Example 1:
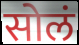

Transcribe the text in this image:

सोलं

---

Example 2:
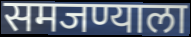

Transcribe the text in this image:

समजण्याला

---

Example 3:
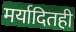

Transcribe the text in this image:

मर्यादितही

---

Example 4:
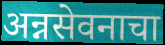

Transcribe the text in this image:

अन्नसेवनाचा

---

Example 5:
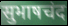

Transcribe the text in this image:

सुभाषचंद